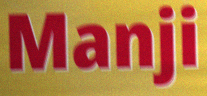
Manji